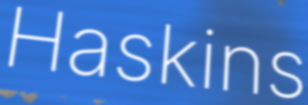
Haskins